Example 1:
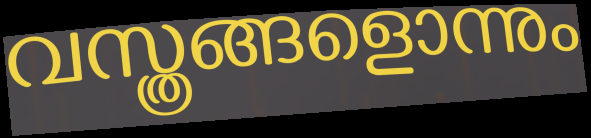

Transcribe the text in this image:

വസ്ത്രങ്ങളൊന്നും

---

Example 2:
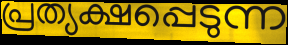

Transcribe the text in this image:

പ്രത്യക്ഷപ്പെടുന്ന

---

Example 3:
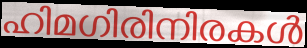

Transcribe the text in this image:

ഹിമഗിരിനിരകൾ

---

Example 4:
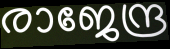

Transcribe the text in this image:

രാജേന്ദ്ര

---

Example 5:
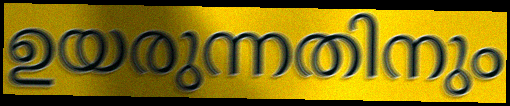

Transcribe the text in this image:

ഉയരുന്നതിനും